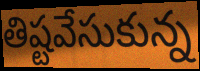
తిష్టవేసుకున్న